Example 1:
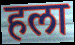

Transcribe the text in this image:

हला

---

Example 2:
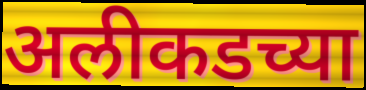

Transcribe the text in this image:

अलीकडच्या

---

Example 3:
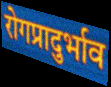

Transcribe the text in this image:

रोगप्रादुर्भाव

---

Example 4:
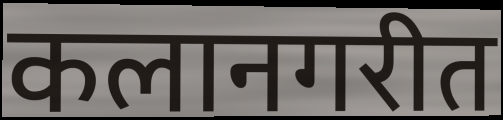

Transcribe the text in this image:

कलानगरीत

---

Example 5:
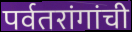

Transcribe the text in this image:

पर्वतरांगांची